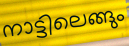
നാട്ടിലെങ്ങും